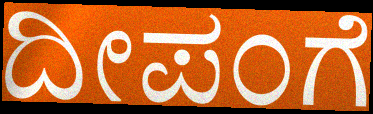
ದೀಪಂಗೆ